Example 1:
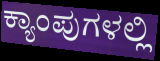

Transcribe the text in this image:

ಕ್ಯಾಂಪುಗಳಲ್ಲಿ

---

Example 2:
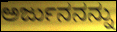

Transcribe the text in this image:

ಅರ್ಜುನನನ್ನು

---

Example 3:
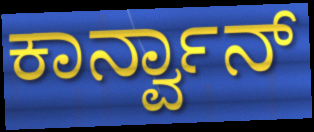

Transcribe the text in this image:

ಕಾರ್ನ್ವಾನ್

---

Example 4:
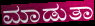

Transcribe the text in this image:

ಮಾಡುತಾ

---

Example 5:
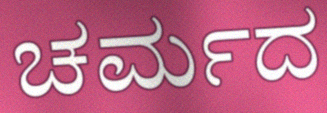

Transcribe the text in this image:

ಚರ್ಮದ